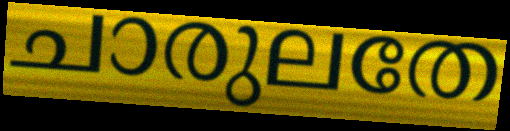
ചാരുലതേ